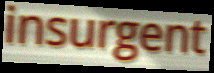
insurgent